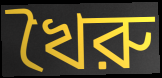
খৈরু